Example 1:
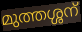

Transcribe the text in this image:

മുത്തശ്ശന്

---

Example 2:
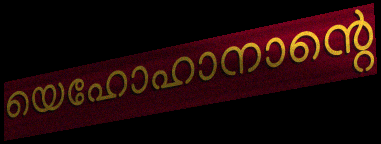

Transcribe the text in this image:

യെഹോഹാനാന്റെ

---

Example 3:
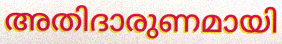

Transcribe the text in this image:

അതിദാരുണമായി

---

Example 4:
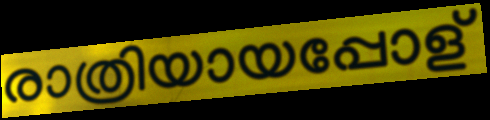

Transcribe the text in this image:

രാത്രിയായപ്പോള്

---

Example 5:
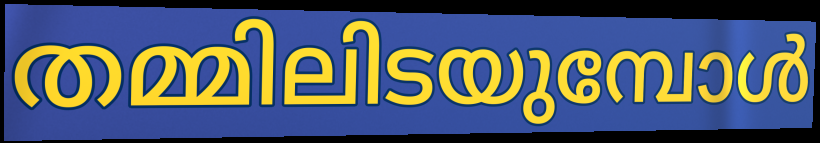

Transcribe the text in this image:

തമ്മിലിടയുമ്പോൾ